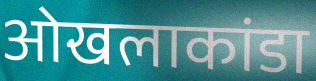
ओखलाकांडा